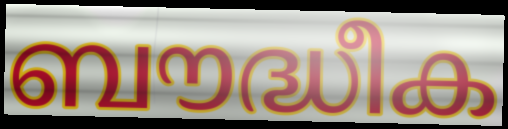
ബൗദ്ധീക